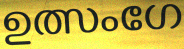
ഉത്സംഗേ